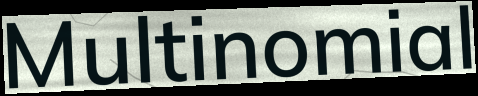
Multinomial